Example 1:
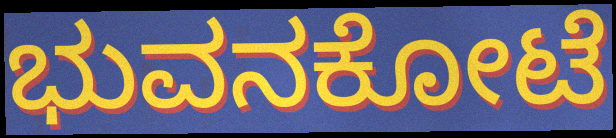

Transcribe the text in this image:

ಭುವನಕೋಟೆ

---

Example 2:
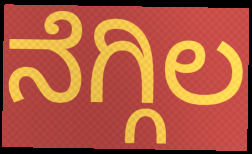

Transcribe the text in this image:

ನೆಗ್ಗಿಲ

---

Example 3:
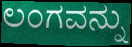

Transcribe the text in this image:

ಲಂಗವನ್ನು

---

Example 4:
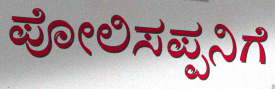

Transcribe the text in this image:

ಪೋಲಿಸಪ್ಪನಿಗೆ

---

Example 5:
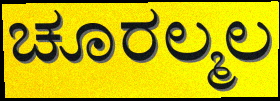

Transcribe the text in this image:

ಚೂರಲ್ಮಲ